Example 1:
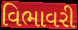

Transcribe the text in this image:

વિભાવરી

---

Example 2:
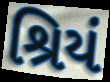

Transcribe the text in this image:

શ્રિયં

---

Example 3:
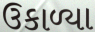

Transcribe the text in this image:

ઉકાળ્યા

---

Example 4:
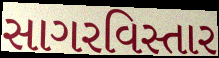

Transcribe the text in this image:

સાગરવિસ્તાર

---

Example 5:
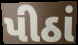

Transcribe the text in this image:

પીઠાં